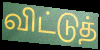
விட்டுத்